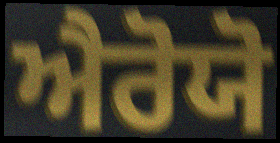
ਐਰੋਯੋ